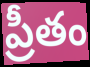
ప్రీతం